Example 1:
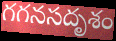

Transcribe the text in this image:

గగనసదృశం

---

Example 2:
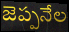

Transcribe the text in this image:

జెప్పనేల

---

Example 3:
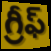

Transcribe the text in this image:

గ్రీఫ్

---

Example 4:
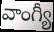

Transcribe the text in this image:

వాంగ్యీ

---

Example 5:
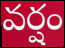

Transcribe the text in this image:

వర్షం